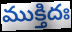
ముక్తిదః